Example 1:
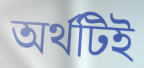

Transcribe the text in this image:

অর্থটিই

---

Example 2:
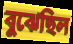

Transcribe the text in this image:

বুঝেছিল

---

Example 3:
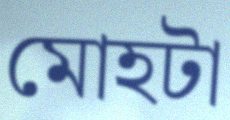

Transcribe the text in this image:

মোহটা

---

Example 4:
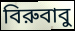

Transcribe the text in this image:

বিরুবাবু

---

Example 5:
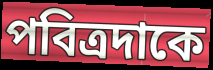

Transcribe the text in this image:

পবিত্রদাকে